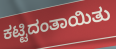
ಕಟ್ಟಿದಂತಾಯಿತು